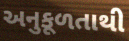
અનુકૂળતાથી